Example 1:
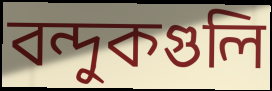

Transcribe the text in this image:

বন্দুকগুলি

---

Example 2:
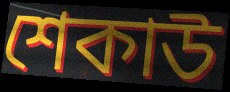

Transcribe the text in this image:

শেকাউ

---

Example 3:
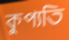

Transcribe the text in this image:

কুপ্যতি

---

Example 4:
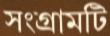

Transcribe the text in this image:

সংগ্রামটি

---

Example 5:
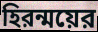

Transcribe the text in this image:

হিরন্ময়ের